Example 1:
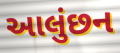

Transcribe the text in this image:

આલુંછન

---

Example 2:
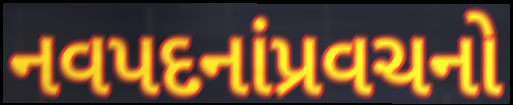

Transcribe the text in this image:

નવપદનાંપ્રવચનો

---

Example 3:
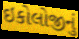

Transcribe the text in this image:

ઇકોલોજીનું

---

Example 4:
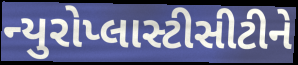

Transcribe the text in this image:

ન્યુરોપ્લાસ્ટીસીટીને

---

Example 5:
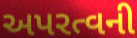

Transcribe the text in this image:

અપરત્વની